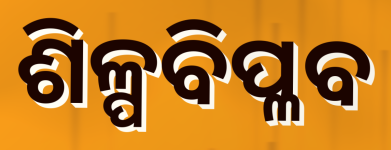
ଶିଳ୍ପବିପ୍ଳବ